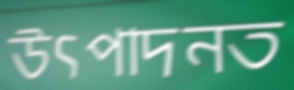
উৎপাদনত